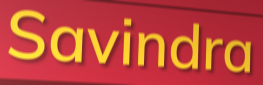
Savindra